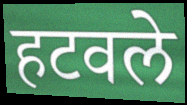
हटवले